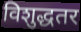
विशुद्धतर